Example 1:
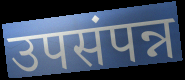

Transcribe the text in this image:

उपसंपन्न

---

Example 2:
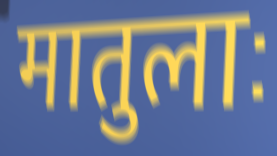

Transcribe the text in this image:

मातुलाः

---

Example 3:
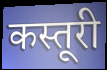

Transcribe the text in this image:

कस्तूरी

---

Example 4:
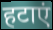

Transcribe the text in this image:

हटाएं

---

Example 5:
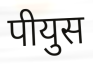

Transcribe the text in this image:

पीयुस